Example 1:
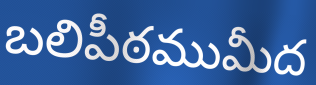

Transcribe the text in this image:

బలిపీఠముమీద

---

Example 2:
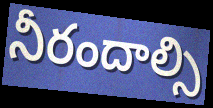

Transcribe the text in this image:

నీరందాల్సి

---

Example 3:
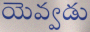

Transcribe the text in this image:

యెవ్వడు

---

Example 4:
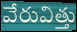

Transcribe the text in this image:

వేరువిత్తు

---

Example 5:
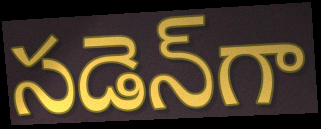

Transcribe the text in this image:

సడెన్‌గా